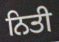
ਨਿਤੀ